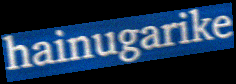
hainugarike